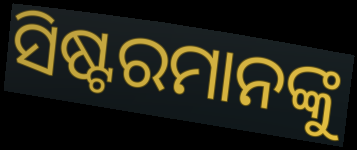
ସିଷ୍ଟରମାନଙ୍କୁ